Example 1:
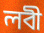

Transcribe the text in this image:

লবী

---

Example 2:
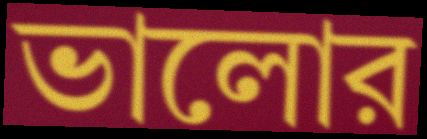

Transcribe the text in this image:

ভালোর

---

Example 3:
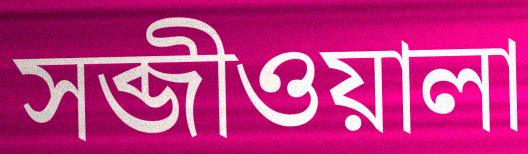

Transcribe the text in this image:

সব্জীওয়ালা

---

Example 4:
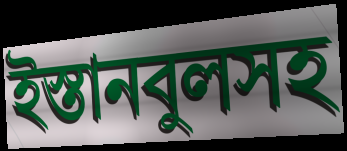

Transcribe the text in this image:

ইস্তানবুলসহ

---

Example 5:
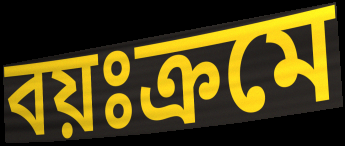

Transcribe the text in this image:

বয়ঃক্রমে